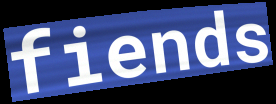
fiends